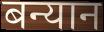
बन्यान